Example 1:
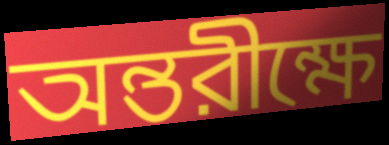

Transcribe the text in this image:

অন্তরীক্ষে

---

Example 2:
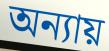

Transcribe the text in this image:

অন্যায়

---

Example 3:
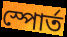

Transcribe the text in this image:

স্পোর্ত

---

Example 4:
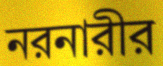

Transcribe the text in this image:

নরনারীর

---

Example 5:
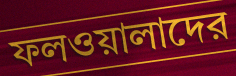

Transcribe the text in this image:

ফলওয়ালাদের